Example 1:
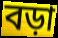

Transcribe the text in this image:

বড়া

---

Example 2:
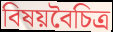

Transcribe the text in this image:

বিষয়বৈচিত্র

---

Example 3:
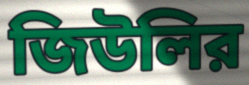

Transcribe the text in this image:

জিউলির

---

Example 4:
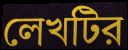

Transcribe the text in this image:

লেখটির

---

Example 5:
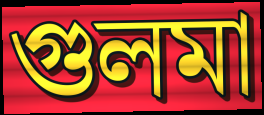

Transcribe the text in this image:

গুলমা